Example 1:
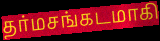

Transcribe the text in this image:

தர்மசங்கடமாகி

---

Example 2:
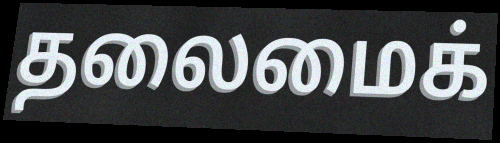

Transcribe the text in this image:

தலைமைக்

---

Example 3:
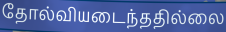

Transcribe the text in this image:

தோல்வியடைந்ததில்லை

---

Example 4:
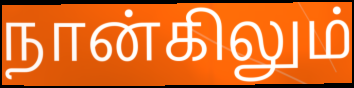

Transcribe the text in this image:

நான்கிலும்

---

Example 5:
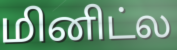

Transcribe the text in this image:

மினிட்ல